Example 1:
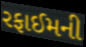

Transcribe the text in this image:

રફાઈમની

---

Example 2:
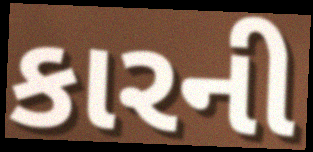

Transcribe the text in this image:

કારની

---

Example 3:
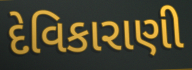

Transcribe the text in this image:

દેવિકારાણી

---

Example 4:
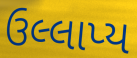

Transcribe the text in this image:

ઉલ્લાપ્ય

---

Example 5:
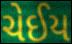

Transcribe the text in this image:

ચેઈય